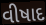
વીષાદ